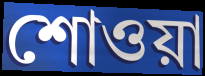
শোওয়া